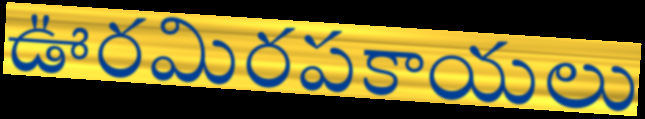
ఊరమిరపకాయలు